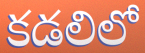
కడలిలో